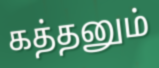
கத்தனும்